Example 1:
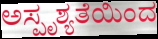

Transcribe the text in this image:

ಅಸ್ಪೃಶ್ಯತೆಯಿಂದ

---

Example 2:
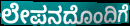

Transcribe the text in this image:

ಲೇಪನದೊಂದಿಗೆ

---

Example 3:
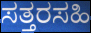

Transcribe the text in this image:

ಸತ್ತರಸಹಿ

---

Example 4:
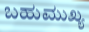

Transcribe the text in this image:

ಬಹುಮುಖ್ಯ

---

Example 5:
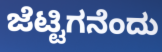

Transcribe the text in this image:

ಜೆಟ್ಟಿಗನೆಂದು